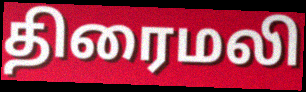
திரைமலி